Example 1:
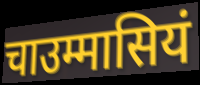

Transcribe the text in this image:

चाउम्मासियं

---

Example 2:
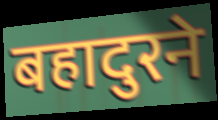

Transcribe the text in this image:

बहादुरने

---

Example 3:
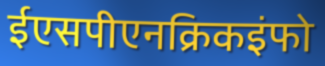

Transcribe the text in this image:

ईएसपीएनक्रिकइंफो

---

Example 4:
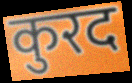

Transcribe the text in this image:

कुरद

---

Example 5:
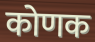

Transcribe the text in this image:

कोणक